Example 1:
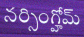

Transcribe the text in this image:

నర్సింగ్హోమ్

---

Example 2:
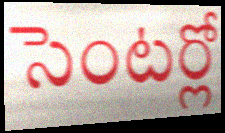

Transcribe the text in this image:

సెంటర్లో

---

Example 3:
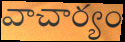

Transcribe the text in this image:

వాచార్యం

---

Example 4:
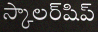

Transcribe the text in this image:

స్కాలర్‌షిప్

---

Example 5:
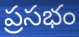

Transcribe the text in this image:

ప్రసభం